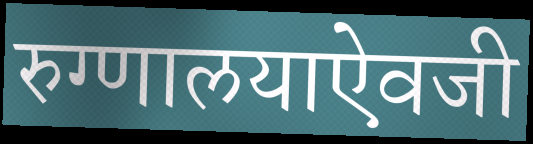
रुग्णालयाऐवजी